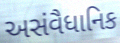
અસંવૈધાનિક